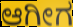
ಆಗೀಗ